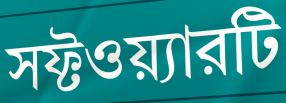
সফ্টওয়্যারটি